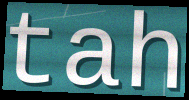
tah